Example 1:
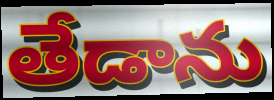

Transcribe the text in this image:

తేడాను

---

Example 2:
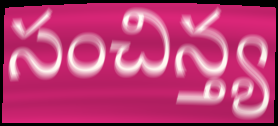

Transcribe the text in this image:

సంచిన్త్య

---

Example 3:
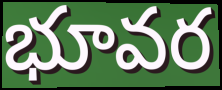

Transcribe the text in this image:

భూవర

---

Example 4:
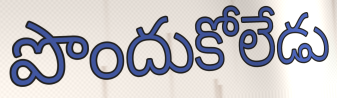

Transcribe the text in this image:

పొందుకోలేడు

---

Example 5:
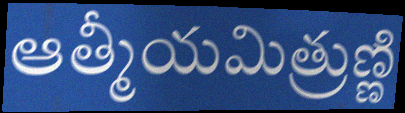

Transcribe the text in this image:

ఆత్మీయమిత్రుణ్ణి